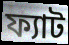
ফ্যাট